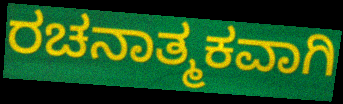
ರಚನಾತ್ಮಕವಾಗಿ